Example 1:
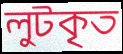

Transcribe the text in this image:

লুটকৃত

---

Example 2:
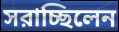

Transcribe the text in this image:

সরাচ্ছিলেন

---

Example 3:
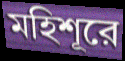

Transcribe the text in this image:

মহিশূরে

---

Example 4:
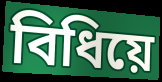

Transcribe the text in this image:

বিধিয়ে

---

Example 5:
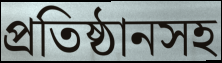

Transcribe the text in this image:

প্রতিষ্ঠানসহ